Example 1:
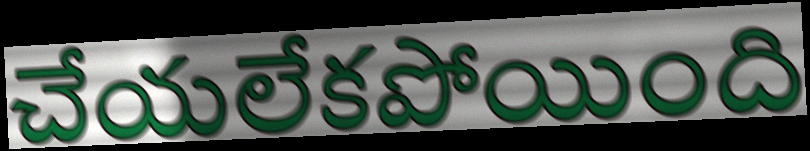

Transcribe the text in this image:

చేయలేకపోయింది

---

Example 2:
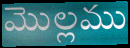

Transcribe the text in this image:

మొల్లము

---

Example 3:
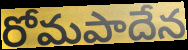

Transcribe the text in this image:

రోమపాదేన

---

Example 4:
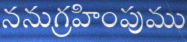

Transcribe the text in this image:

ననుగ్రహింపుము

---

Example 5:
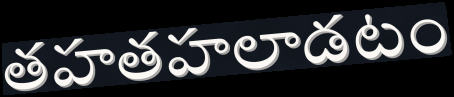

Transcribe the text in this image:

తహతహలాడటం